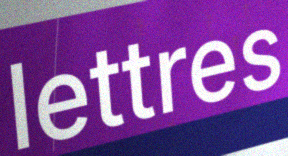
lettres